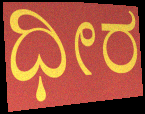
ಧೀರ